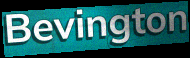
Bevington